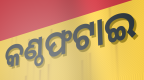
କଣ୍ଠଫଟାଇ